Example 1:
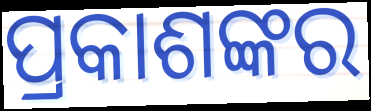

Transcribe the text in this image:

ପ୍ରକାଶଙ୍କର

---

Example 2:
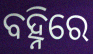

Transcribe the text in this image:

ବହ୍ନିରେ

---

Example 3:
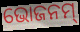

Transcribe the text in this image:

ଭୋଜନମ୍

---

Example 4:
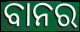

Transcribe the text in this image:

ବାନର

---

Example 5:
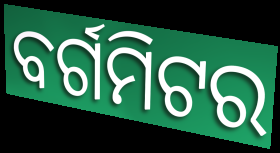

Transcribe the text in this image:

ବର୍ଗମିଟର